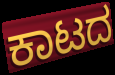
ಕಾಟದ